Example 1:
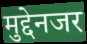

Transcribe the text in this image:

मुद्देनजर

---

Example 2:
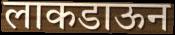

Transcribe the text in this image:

लाकडाऊन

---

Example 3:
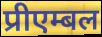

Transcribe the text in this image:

प्रीएम्बल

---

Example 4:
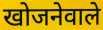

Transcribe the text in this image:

खोजनेवाले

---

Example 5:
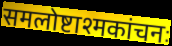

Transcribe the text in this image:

समलोष्टाश्मकांचनः